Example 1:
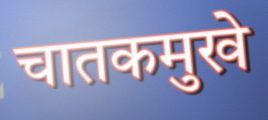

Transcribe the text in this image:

चातकमुखे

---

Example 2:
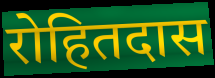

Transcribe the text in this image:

रोहितदास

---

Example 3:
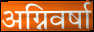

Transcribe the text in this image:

अग्निवर्षा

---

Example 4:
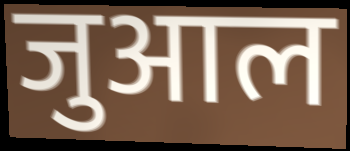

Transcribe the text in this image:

जुआल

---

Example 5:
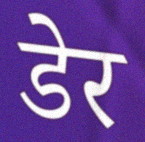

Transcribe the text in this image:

डेर